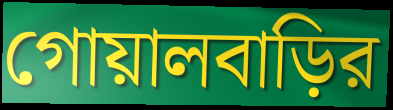
গোয়ালবাড়ির